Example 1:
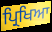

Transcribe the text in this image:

ਪ੍ਰਿਖਿਆ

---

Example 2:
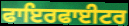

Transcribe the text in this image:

ਫਾਇਰਫਾਈਟਰ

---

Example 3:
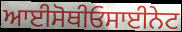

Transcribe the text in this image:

ਆਈਸੋਥੀਓਸਾਈਨੇਟ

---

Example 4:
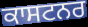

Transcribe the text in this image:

ਕਾਸਟਨਰ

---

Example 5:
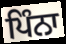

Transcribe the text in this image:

ਪਿੰਨਾ